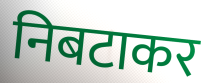
निबटाकर